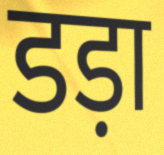
डड़ा